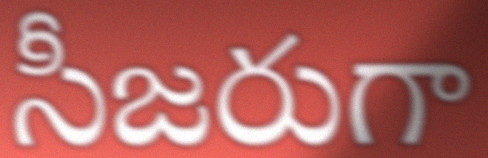
సీజరుగా